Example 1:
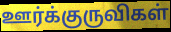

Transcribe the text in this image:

ஊர்க்குருவிகள்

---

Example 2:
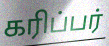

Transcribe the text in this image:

கரிப்பர்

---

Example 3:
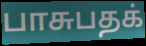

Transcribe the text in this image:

பாசுபதக்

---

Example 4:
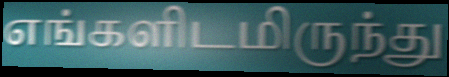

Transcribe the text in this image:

எங்களிடமிருந்து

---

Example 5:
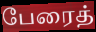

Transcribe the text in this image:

பேரைத்